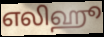
எலிஹூ